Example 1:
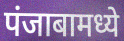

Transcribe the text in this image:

पंजाबामध्ये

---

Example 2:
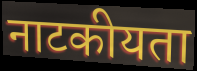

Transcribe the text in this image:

नाटकीयता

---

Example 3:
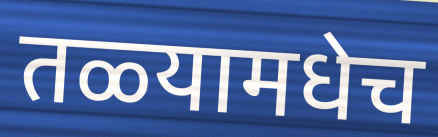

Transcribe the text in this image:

तळ्यामधेच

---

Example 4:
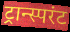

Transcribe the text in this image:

ट्रान्स्परंट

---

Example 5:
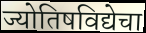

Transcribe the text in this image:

ज्योतिषविद्येचा